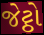
જેટ્ઠો